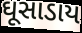
ઘૂસાડાય